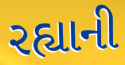
રહ્યાની